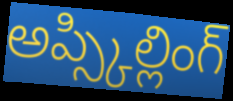
అప్స్కిల్లింగ్